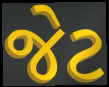
જેટ